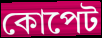
কোপেট